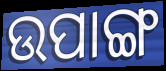
ଉପାଙ୍ଗ